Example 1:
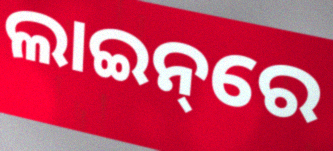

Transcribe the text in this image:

ଲାଇନ୍‌ରେ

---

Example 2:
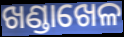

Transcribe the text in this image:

ଖଣ୍ଡାଖେଳ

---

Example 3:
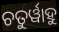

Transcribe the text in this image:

ଚତୁର୍ୱାହୁ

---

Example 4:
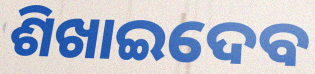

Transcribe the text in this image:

ଶିଖାଇଦେବ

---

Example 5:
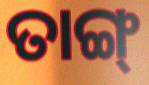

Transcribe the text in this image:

ତାଙ୍ଗ୍